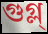
গুগ্ল্